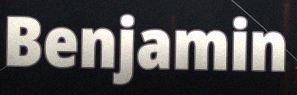
Benjamin